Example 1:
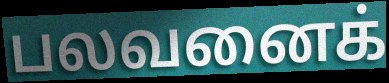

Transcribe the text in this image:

பலவனைக்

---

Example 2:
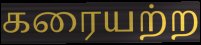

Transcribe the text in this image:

கரையற்ற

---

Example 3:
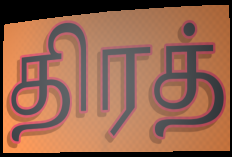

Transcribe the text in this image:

திரத்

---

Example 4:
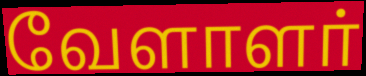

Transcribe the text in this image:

வேளாளர்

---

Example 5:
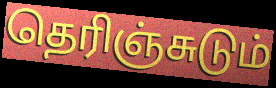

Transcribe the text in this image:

தெரிஞ்சுடும்